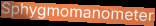
Sphygmomanometer